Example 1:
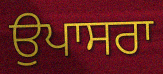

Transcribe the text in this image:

ਉਪਾਸਰਾ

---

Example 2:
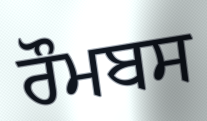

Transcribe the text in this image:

ਰੌਮਬਸ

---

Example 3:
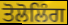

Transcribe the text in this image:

ਤੋਲੋਲਿੰਗ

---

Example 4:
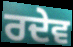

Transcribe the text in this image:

ਰਦੇਵ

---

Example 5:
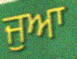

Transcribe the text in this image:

ਜੁਆ